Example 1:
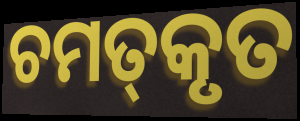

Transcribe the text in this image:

ଚମତ୍‌କୃତ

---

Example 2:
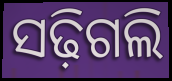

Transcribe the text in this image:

ସଢ଼ିଗଲି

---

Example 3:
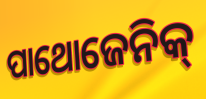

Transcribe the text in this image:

ପାଥୋଜେନିକ୍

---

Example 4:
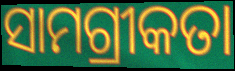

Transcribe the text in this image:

ସାମଗ୍ରୀକତା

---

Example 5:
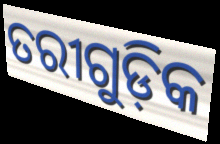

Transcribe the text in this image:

ତରୀଗୁଡ଼ିକ